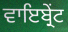
ਵਾਇਬ੍ਰੇਂਟ